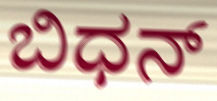
ಬಿಧನ್